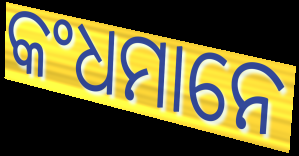
କଂଧମାନେ